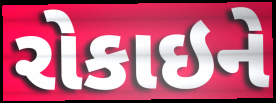
રોકાઇને